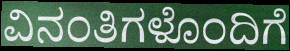
ವಿನಂತಿಗಳೊಂದಿಗೆ